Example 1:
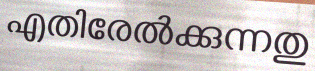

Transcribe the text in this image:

എതിരേൽക്കുന്നതു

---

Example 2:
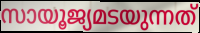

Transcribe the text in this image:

സായൂജ്യമടയുന്നത്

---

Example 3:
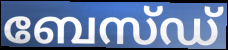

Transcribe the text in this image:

ബേസ്ഡ്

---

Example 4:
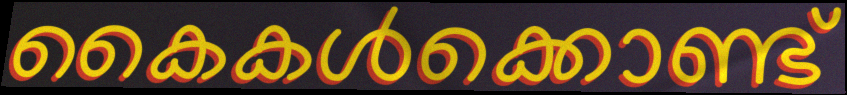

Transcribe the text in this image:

കൈകൾക്കൊണ്ട്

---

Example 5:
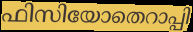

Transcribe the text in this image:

ഫിസിയോതെറാപ്പി